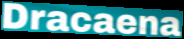
Dracaena